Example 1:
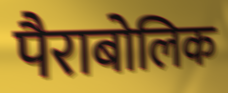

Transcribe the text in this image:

पैराबोलिक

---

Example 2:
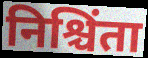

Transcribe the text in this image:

निश्चिंता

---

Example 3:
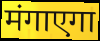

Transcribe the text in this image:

मंगाएगा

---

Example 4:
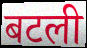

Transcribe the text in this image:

बटली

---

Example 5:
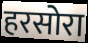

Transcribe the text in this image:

हरसोरा